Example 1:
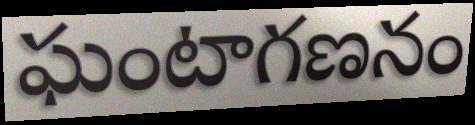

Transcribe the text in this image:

ఘంటాగణనం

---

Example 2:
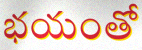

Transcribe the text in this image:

భయంతో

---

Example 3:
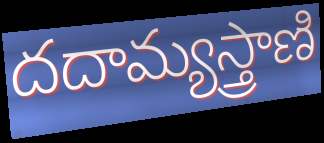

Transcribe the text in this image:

దదామ్యస్త్రాణి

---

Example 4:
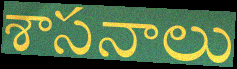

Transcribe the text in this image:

శాసనాలు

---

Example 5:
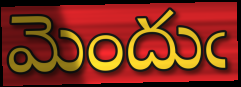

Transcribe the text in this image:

మెందుఁ